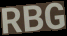
RBG